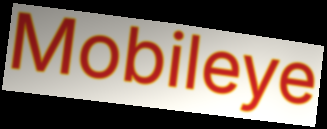
Mobileye